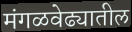
मंगळवेढ्यातील